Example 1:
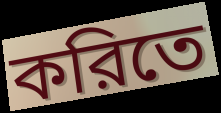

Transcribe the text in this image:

করিতে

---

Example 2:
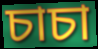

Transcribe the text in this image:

চাচা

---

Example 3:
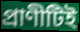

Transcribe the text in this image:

প্রাণীটিই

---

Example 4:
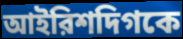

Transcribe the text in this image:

আইরিশদিগকে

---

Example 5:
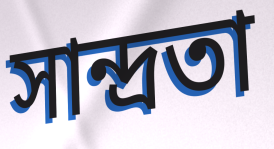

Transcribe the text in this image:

সান্দ্রতা